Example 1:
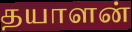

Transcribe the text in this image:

தயாளன்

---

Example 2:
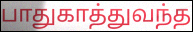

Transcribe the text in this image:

பாதுகாத்துவந்த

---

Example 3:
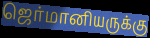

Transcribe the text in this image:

ஜெர்மானியருக்கு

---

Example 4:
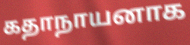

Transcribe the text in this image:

கதாநாயனாக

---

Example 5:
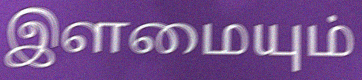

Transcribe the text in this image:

இளமையும்